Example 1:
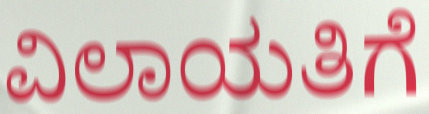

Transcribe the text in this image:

ವಿಲಾಯತಿಗೆ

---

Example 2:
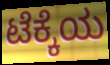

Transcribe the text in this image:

ಟೆಕ್ಕೆಯ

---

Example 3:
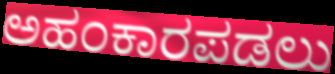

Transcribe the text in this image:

ಅಹಂಕಾರಪಡಲು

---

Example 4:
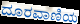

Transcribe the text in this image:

ದೂರವಾಣಿಯ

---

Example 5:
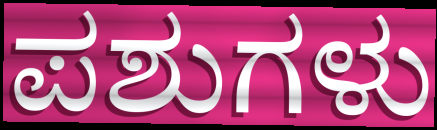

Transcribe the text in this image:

ಪಶುಗಳು